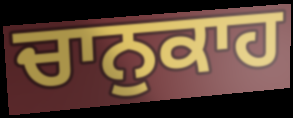
ਚਾਨੁਕਾਹ